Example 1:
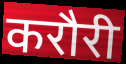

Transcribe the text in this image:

करौरी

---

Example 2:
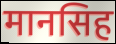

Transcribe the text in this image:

मानसिह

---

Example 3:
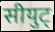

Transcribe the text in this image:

सीयुट्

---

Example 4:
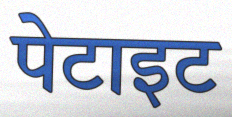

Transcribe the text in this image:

पेटाइट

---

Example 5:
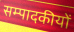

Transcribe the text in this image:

सम्पादकीयों